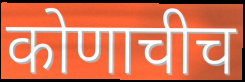
कोणाचीच